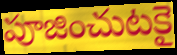
పూజించుటకై